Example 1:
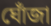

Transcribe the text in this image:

ঘোঁজা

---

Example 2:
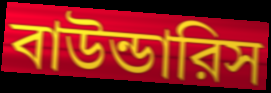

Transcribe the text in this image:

বাউন্ডারিস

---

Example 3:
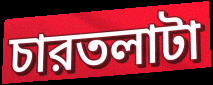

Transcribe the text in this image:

চারতলাটা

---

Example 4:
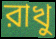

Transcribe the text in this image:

রাখু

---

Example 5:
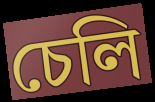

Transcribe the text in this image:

চেলি